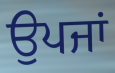
ਉਪਜਾਂ